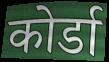
कोर्डा